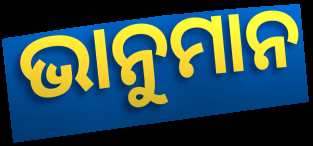
ଭାନୁମାନ